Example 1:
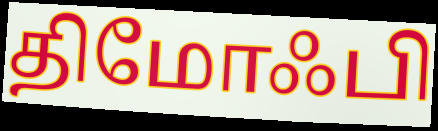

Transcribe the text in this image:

திமோஃபி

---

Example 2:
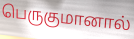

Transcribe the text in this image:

பெருகுமானால்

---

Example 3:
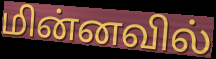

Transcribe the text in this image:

மின்னவில்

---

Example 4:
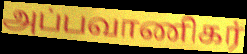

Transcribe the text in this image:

அப்பவாணிகர்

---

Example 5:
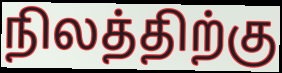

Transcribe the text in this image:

நிலத்திற்கு